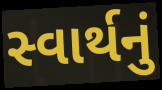
સ્વાર્થનું